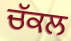
ਚੱਕਲ